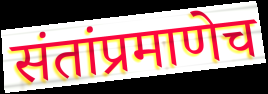
संतांप्रमाणेच